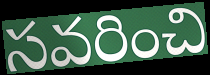
సవరించి